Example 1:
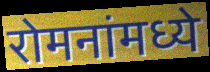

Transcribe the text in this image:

रोमनांमध्ये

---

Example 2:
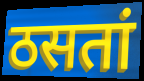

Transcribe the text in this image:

ठसतां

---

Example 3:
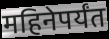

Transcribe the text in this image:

महिनेपर्यंत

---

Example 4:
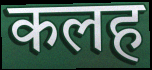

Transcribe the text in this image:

कलह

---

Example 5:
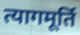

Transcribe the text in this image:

त्यागमूर्ति